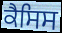
ਕੈਸਿਸ